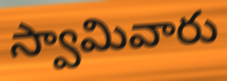
స్వామివారు